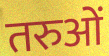
तरुओं